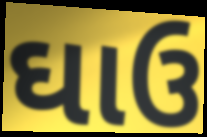
ઘાઉ